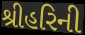
શ્રીહરિની